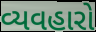
વ્યવહારો